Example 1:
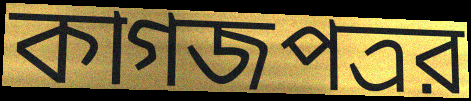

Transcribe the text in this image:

কাগজপত্রর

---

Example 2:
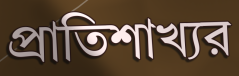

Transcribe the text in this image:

প্রাতিশাখ্যর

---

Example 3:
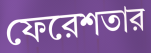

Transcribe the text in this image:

ফেরেশতার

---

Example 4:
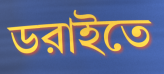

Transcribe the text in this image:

ডরাইতে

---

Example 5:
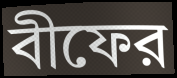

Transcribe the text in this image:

বীফের